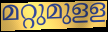
മറ്റുമുളള